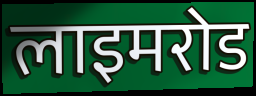
लाइमरोड